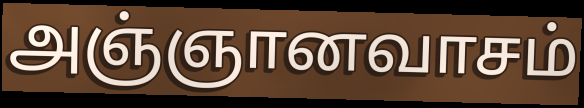
அஞ்ஞானவாசம்